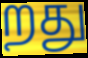
றது